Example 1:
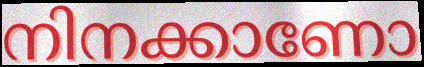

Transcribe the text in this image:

നിനക്കാണോ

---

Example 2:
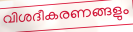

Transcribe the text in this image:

വിശദീകരണങ്ങളും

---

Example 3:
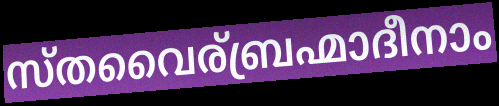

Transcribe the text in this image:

സ്തവൈര്ബ്രഹ്മാദീനാം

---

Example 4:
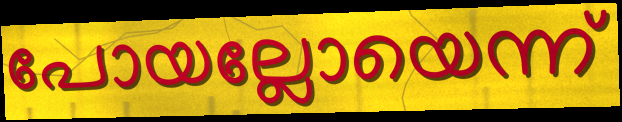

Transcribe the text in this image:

പോയല്ലോയെന്ന്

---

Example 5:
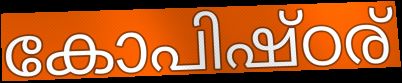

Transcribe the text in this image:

കോപിഷ്ഠര്